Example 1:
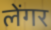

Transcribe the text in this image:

लेंगर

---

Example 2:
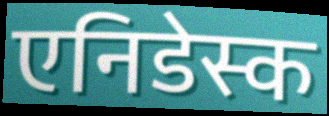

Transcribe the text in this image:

एनिडेस्क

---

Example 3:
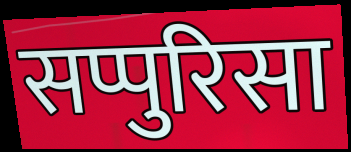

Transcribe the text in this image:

सप्पुरिसा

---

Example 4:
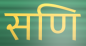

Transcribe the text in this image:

सणि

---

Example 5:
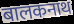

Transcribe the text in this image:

बालकनाथ